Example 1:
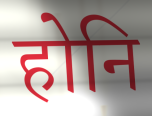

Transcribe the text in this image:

होनि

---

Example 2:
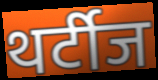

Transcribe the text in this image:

थर्टीज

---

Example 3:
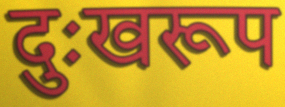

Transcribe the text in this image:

दुःखरूप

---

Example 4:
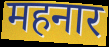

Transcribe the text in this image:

महनार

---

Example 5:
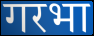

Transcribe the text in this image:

गरभा